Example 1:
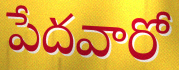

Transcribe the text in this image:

పేదవారో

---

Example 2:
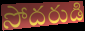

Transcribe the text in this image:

సోదరుడి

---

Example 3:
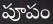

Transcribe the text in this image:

పూపం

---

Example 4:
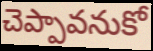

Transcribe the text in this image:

చెప్పావనుకో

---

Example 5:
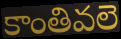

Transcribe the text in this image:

కాంతివలె